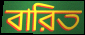
বারিত